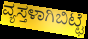
ವ್ಯಸ್ತಳಾಗಿಬಿಟ್ಟೆ